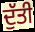
ਦੁੱਤੀ